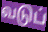
வடுப்